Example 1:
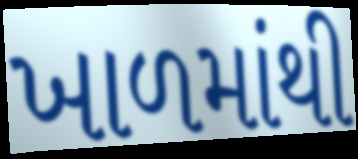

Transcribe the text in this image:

ખાળમાંથી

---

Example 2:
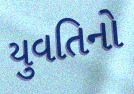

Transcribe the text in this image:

યુવતિનો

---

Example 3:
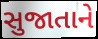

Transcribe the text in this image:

સુજાતાને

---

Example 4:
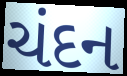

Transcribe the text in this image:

ચંદન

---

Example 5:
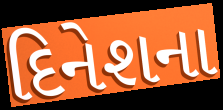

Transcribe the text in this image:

દિનેશના